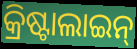
କ୍ରିଷ୍ଟାଲାଇନ୍